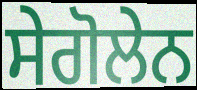
ਸੇਗੋਲੇਨ